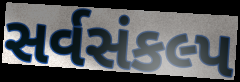
સર્વસંકલ્પ